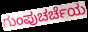
ಗುಂಪುಚರ್ಚೆಯ